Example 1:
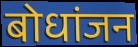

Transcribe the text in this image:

बोधांजन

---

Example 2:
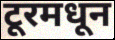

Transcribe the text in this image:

टूरमधून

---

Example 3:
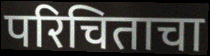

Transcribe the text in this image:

परिचिताचा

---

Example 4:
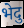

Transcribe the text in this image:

भेदु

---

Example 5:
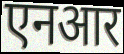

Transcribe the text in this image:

एनआर